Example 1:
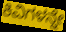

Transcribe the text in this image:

ಕಿವಿಗಳನ್ನೇ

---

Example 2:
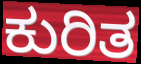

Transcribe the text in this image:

ಕುರಿತ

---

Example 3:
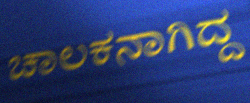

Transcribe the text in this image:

ಚಾಲಕನಾಗಿದ್ದ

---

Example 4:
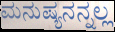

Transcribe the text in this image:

ಮನುಷ್ಯನನ್ನಲ್ಲ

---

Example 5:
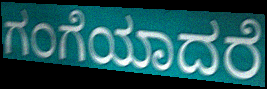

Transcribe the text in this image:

ಗಂಗೆಯಾದರೆ